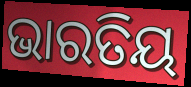
ଭାରତିୟ